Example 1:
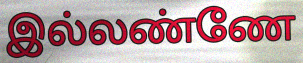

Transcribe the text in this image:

இல்லண்ணே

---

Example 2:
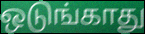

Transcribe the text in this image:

ஒடுங்காது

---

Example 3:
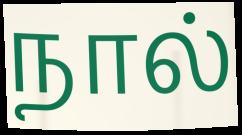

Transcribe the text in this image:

நால்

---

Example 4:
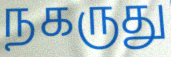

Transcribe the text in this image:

நகருது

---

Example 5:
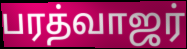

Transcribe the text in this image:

பரத்வாஜர்